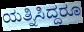
ಯತ್ನಿಸಿದ್ದರೂ